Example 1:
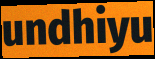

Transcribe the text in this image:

undhiyu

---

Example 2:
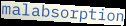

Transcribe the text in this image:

malabsorption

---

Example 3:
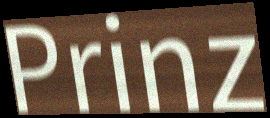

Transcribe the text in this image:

Prinz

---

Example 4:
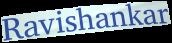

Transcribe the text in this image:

Ravishankar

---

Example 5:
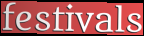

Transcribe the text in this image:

festivals